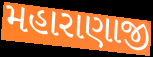
મહારાણાજી